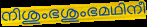
നിശുംഭശുംഭമഥിനീ